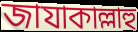
জাযাকাল্লাহু